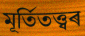
মূৰ্তিতত্ত্বৰ